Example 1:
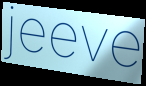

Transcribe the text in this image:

jeeve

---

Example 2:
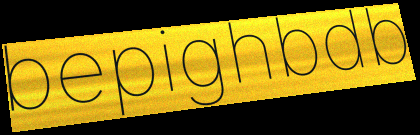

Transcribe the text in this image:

bepighbdb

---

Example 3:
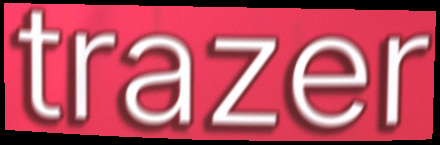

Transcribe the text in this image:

trazer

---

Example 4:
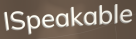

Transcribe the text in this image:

ISpeakable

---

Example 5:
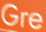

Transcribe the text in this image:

Gre